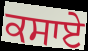
ਕਸਾਏ